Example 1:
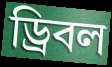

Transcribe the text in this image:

ড্রিবল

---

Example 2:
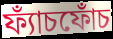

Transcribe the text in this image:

ফ্যাঁচফোঁচ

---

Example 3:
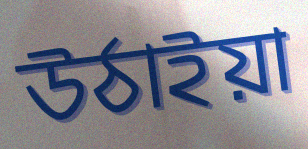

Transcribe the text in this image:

উঠাইয়া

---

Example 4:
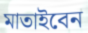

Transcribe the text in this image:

মাতাইবেন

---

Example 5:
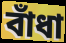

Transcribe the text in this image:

বাঁধা